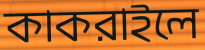
কাকরাইলে